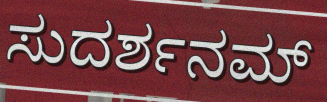
ಸುದರ್ಶನಮ್